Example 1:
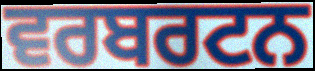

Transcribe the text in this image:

ਵਰਬਰਟਨ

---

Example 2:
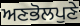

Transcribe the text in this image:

ਅਣਭੋਲਪੁਣੇ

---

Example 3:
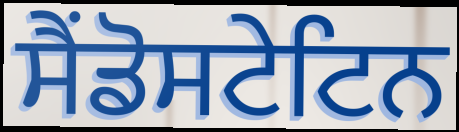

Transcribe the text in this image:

ਸੈਂਡੋਸਟੇਟਿਨ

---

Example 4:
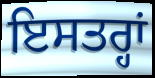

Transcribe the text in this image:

ਇਸਤਰ੍ਹਾਂ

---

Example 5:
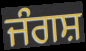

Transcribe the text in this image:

ਜੰਗਸ਼